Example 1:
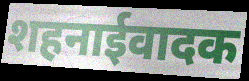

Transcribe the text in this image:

शहनाईवादक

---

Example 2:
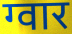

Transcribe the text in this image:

ग्वार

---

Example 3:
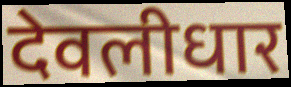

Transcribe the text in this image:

देवलीधार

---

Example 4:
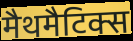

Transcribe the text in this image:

मैथमैटिक्स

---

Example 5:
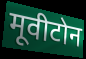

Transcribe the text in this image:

मूवीटोन